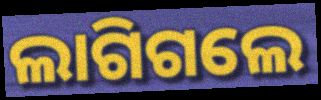
ଲାଗିଗଲେ